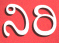
ನಿರಿ